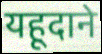
यहूदाने